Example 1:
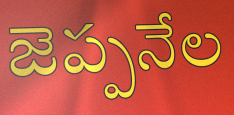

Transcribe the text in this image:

జెప్పనేల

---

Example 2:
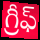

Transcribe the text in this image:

గ్రీఫ్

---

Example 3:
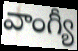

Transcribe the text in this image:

వాంగ్యీ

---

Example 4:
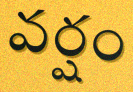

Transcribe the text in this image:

వర్షం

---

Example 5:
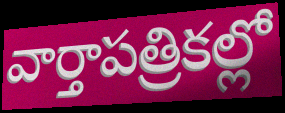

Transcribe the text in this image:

వార్తాపత్రికల్లో